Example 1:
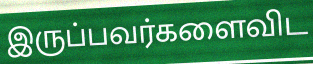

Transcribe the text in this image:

இருப்பவர்களைவிட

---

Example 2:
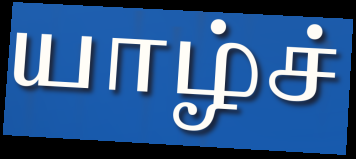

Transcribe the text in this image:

யாழ்ச்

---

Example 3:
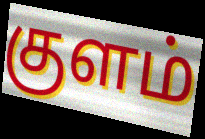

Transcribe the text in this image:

குளம்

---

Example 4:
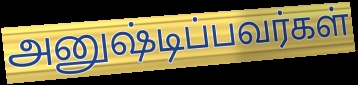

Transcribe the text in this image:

அனுஷ்டிப்பவர்கள்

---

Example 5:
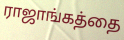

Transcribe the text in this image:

ராஜாங்கத்தை